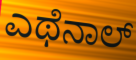
ಎಥೆನಾಲ್